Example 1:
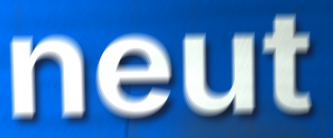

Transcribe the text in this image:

neut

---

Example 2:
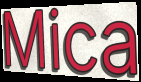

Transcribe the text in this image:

Mica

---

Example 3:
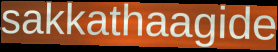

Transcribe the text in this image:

sakkathaagide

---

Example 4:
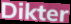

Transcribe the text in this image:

Dikter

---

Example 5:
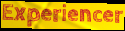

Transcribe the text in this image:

Experiencer